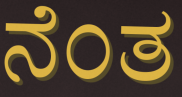
ನೆಂತ